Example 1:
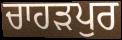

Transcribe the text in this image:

ਚਾਹਡ਼ਪੁਰ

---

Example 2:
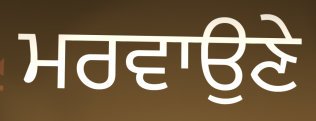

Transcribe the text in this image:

ਮਰਵਾਉਣੇ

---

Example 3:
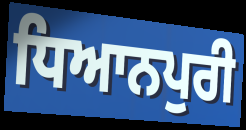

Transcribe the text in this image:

ਧਿਆਨਪੁਰੀ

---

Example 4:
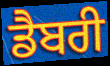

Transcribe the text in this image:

ਡੈਬਰੀ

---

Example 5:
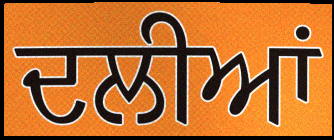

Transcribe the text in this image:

ਦਲੀਆਂ